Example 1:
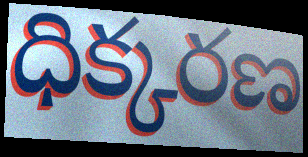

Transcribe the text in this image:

ధిక్కరణ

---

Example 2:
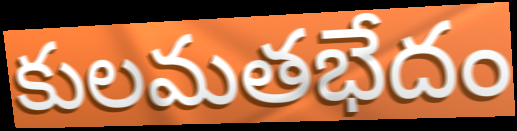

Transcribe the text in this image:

కులమతభేదం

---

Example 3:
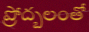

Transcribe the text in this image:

ప్రోద్బలంతో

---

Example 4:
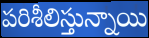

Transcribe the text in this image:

పరిశీలిస్తున్నాయి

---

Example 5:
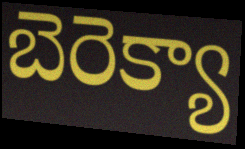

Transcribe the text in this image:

బెరెక్యా